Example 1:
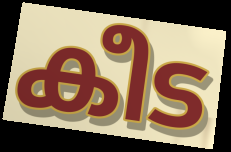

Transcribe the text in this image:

കീട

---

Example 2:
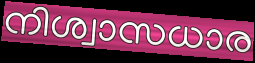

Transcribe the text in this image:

നിശ്വാസധാര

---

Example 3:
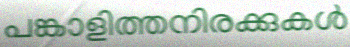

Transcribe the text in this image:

പങ്കാളിത്തനിരക്കുകൾ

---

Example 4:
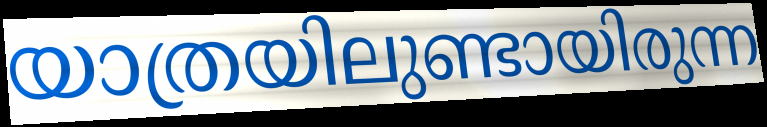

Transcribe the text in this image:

യാത്രയിലുണ്ടായിരുന്ന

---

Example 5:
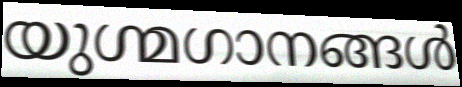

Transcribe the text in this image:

യുഗ്മഗാനങ്ങൾ